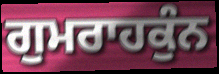
ਗੁਮਰਾਹਕੁੰਨ